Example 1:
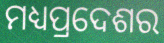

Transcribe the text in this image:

ମଧ୍ଯପ୍ରଦେଶର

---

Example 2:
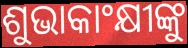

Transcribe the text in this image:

ଶୁଭାକାଂକ୍ଷୀଙ୍କୁ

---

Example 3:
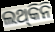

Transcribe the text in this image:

ଲଥ୍‍କିନି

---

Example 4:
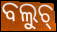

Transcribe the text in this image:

ବଲୁଚ୍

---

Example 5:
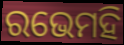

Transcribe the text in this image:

ରଭେମହି